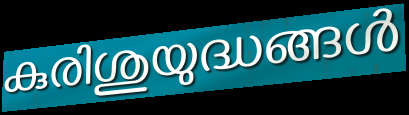
കുരിശുയുദ്ധങ്ങൾ